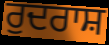
ਰੁਦਰਾਸ਼